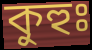
কুহুঃ